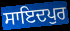
ਸਾਇਦਪੁਰ